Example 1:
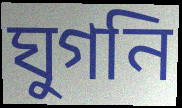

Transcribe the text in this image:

ঘুগনি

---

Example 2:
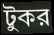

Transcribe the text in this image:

টুকর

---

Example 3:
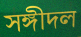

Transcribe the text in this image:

সঙ্গীদল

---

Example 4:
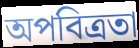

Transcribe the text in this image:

অপবিত্রতা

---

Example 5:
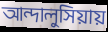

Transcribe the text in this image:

আন্দালুসিয়ায়